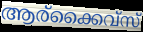
ആര്ക്കൈവ്സ്